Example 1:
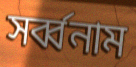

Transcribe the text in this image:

সৰ্ব্বনাম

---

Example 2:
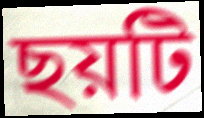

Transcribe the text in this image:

ছয়টি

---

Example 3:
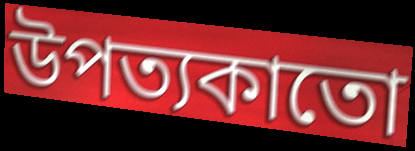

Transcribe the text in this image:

উপত্যকাতো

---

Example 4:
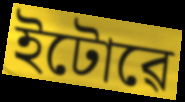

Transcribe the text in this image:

ইটোৱে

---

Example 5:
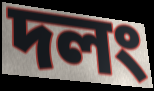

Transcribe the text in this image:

দলং